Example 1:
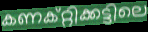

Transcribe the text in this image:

കണക്റ്റിക്കട്ടിലെ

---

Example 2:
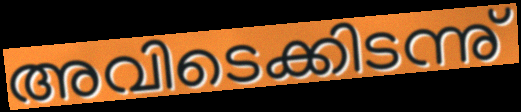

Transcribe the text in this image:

അവിടെക്കിടന്നു്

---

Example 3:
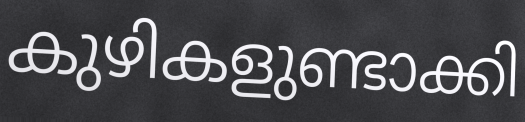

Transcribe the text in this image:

കുഴികളുണ്ടാക്കി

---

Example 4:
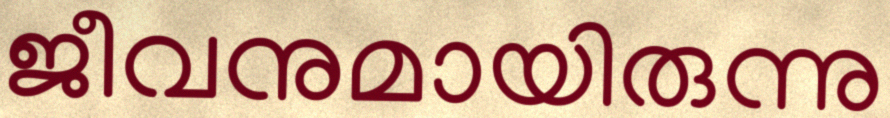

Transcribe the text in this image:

ജീവനുമായിരുന്നു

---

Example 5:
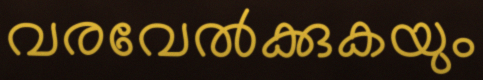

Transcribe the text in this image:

വരവേൽക്കുകയും